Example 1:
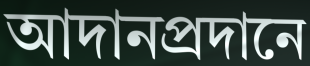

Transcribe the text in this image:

আদানপ্রদানে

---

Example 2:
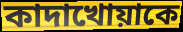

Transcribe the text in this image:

কাদাখোয়াকে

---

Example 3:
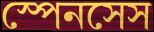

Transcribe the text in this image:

স্পেনসেস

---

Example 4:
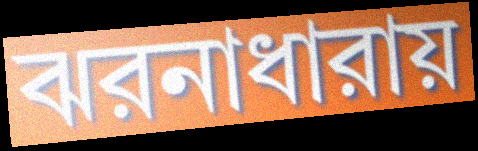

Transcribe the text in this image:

ঝরনাধারায়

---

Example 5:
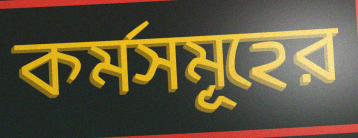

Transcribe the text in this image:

কর্মসমূহের